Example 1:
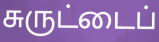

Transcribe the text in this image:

சுருட்டைப்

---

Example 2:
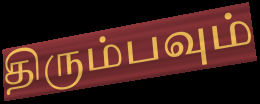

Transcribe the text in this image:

திரும்பவும்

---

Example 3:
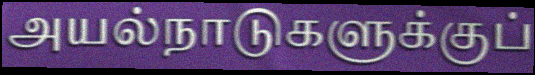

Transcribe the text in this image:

அயல்நாடுகளுக்குப்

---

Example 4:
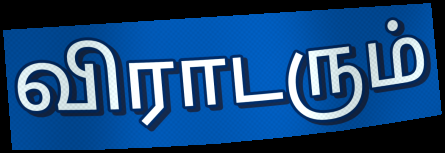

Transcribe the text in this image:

விராடரும்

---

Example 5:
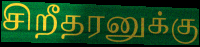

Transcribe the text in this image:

சிறீதரனுக்கு